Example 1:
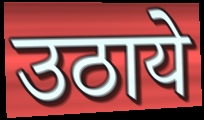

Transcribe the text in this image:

उठाये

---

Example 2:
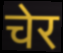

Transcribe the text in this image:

चेर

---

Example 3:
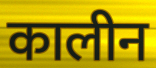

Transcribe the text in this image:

कालीन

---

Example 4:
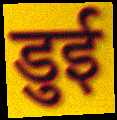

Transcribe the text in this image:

डुई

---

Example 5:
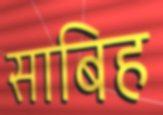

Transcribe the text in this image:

साबिह